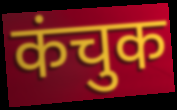
कंचुक